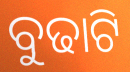
ବୁଢାଟି